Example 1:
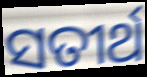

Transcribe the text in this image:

ସତୀର୍ଥ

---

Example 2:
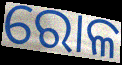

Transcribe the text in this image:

ରୋଳ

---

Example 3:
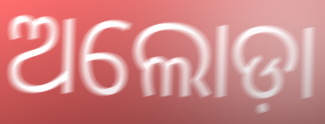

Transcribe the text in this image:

ଅଲୋଡ଼ା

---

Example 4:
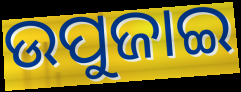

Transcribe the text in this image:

ଉପୁଜାଇ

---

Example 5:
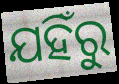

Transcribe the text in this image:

ଯହିଁରୁ